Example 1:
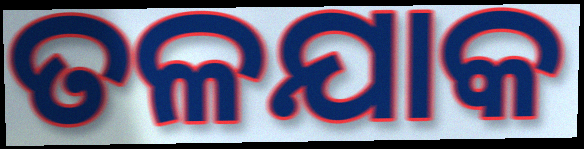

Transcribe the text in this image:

ତଳଯାକ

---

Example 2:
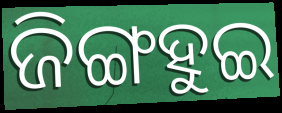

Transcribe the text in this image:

ଜିଙ୍ଗହୁଇ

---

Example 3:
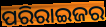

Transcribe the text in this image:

ପରିରାଇଜର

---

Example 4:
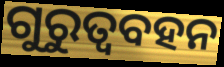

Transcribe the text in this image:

ଗୁରୁତ୍ୱବହନ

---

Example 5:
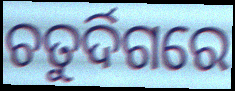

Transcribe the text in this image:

ଚତୁର୍ଦିଗରେ